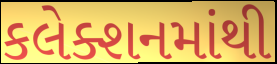
કલેક્શનમાંથી